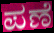
ಪಣೆ